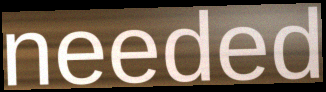
needed